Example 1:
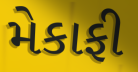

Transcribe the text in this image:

મેકાફી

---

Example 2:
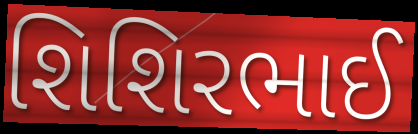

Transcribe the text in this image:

શિશિરભાઈ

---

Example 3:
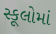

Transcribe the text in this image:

સ્કૂલોમાં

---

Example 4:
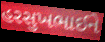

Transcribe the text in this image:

હરસુખભાઈને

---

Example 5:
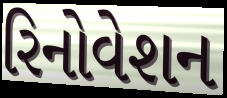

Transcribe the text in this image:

રિનોવેશન